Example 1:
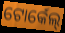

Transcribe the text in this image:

ଟୋର୍କେଲ୍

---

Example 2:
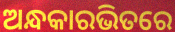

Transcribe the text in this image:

ଅନ୍ଧକାରଭିତରେ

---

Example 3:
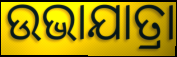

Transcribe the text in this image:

ଉଭାଯାତ୍ରା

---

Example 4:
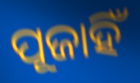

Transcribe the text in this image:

ପୂଜାହିଁ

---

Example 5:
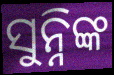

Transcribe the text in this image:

ସୁନ୍ନିଙ୍କ